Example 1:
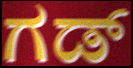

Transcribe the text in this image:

ಗಡ್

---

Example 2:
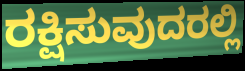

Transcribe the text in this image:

ರಕ್ಷಿಸುವುದರಲ್ಲಿ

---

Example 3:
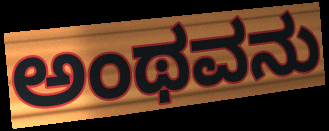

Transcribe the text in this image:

ಅಂಥವನು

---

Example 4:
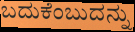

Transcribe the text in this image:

ಬದುಕೆಂಬುದನ್ನು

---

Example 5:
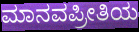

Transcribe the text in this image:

ಮಾನವಪ್ರೀತಿಯ